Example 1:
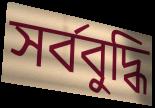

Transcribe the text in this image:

সৰ্ববুদ্ধি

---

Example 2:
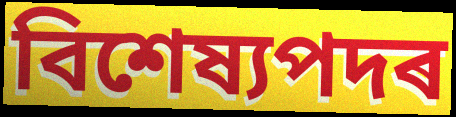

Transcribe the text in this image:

বিশেষ্যপদৰ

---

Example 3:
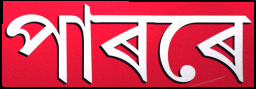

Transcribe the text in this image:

পাৰৰে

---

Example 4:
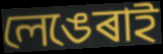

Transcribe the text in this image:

লেঙেৰাই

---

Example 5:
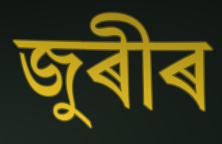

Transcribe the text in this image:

জুৰীৰ